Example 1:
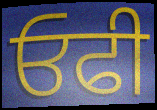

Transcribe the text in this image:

ਓਫੀ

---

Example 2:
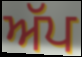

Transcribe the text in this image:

ਅੱਪ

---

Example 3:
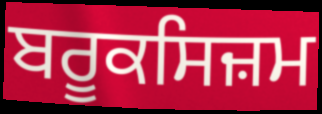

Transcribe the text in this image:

ਬਰੂਕਸਿਜ਼ਮ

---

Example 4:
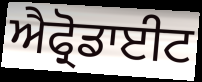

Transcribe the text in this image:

ਐਫ੍ਰੋਡਾਈਟ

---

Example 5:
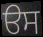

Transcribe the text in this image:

ੳਸ